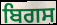
ਬਿਗਸ